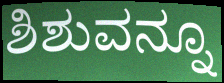
ಶಿಶುವನ್ನೂ